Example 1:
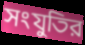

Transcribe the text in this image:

সংযুতির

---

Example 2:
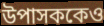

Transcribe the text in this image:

উপাসককেও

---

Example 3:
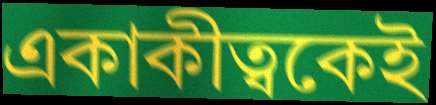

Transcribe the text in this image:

একাকীত্বকেই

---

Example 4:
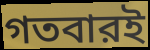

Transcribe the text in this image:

গতবারই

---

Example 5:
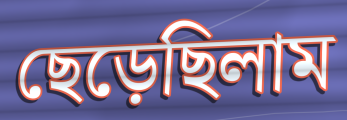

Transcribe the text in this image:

ছেড়েছিলাম